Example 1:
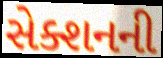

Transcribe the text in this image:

સેક્શનની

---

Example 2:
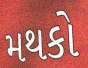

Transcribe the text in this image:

મથકો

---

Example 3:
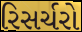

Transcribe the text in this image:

રિસર્ચરો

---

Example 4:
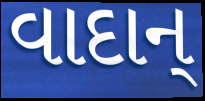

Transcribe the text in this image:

વાદાન્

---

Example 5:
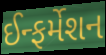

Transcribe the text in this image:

ઈન્ફર્મેશન